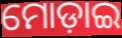
ମୋଡ଼ାଇ